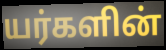
யர்களின்